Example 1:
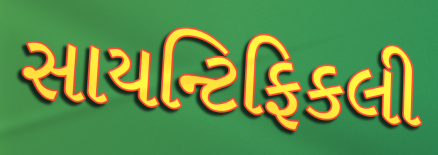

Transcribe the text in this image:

સાયન્ટિફિકલી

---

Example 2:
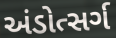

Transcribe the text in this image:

અંડોત્સર્ગ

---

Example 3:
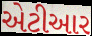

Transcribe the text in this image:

એટીઆર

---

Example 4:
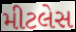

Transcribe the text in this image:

મીટલેસ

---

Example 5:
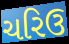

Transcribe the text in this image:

ચરિઉ